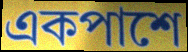
একপাশে